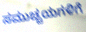
ಸಮುಚ್ಚಯಗಳಿಗೆ